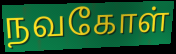
நவகோள்